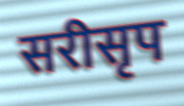
सरीसृप